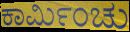
ಕಾರ್ಮಿಂಚು